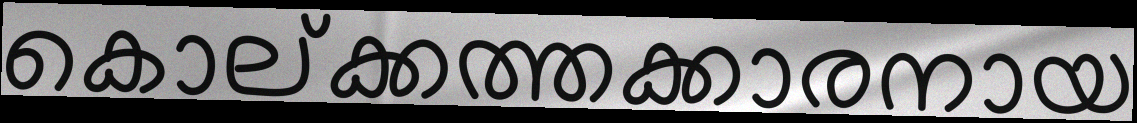
കൊല്ക്കത്തക്കാരനായ